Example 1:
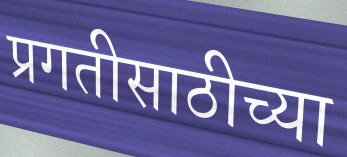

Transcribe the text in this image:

प्रगतीसाठीच्या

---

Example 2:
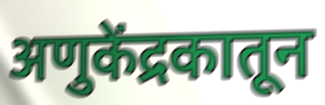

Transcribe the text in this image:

अणुकेंद्रकातून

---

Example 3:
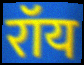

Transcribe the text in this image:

रॉय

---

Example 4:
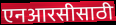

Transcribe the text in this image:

एनआरसीसाठी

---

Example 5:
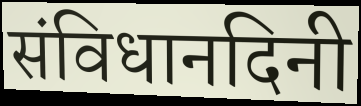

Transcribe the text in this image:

संविधानदिनी